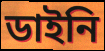
ডাইনি